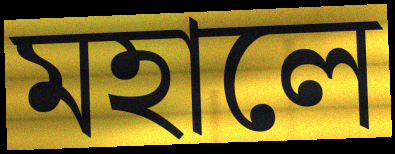
মহালে